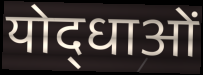
योद्धाओं